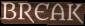
BREAK